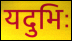
यदुभिः